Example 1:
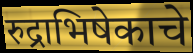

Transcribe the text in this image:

रुद्राभिषेकाचे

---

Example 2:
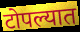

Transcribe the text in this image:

टोपल्यात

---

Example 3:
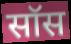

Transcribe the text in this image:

सॉस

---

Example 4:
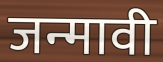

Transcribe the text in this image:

जन्मावी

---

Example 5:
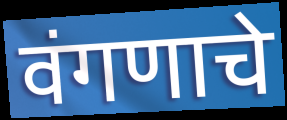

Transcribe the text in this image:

वंगणाचे